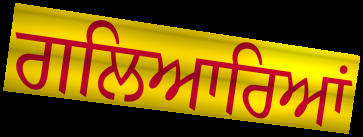
ਗਲਿਆਰਿਆਂ